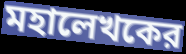
মহালেখকের